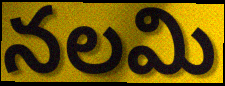
నలమి